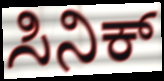
ಸಿನಿಕ್